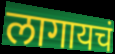
लागायचं